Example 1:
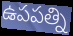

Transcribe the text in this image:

ఉపపత్ని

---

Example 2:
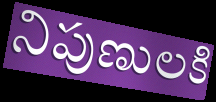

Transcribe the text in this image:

నిపుణులకి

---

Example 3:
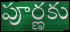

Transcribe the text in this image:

పూర్ణకు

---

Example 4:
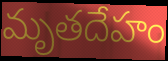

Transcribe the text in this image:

మృతదేహం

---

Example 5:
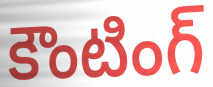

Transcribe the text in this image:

కౌంటింగ్